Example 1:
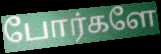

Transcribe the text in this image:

போர்களே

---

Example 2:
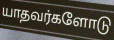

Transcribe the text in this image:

யாதவர்களோடு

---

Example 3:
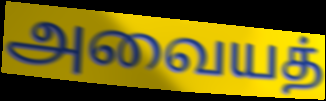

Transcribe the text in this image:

அவையத்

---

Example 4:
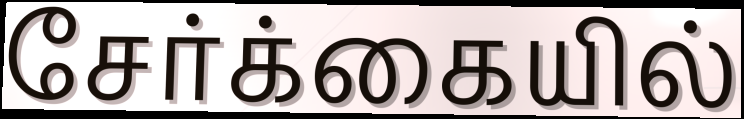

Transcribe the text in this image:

சேர்க்கையில்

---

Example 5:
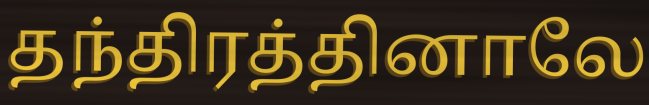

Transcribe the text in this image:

தந்திரத்தினாலே